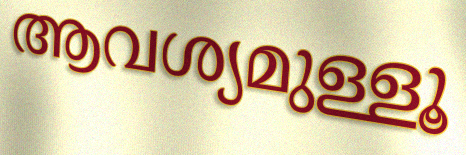
ആവശ്യമുള്ളൂ